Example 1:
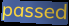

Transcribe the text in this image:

passed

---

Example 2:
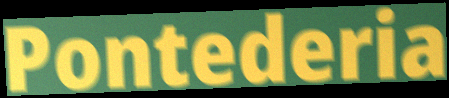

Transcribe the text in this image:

Pontederia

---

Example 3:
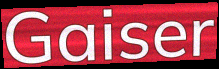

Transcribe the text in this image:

Gaiser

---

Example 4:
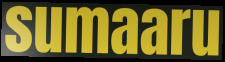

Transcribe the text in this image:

sumaaru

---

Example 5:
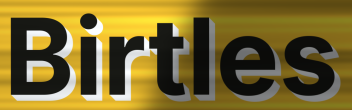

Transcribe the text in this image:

Birtles